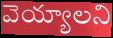
వెయ్యాలని